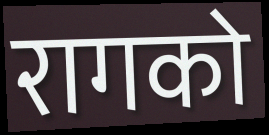
रागको